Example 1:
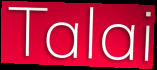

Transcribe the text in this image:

Talai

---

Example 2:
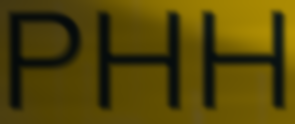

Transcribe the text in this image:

PHH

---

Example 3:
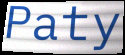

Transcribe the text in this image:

Paty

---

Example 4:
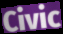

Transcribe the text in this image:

Civic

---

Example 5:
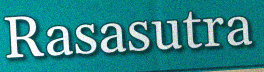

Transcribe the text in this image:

Rasasutra